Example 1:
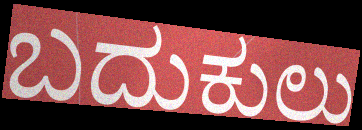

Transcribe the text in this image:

ಬದುಕುಲು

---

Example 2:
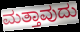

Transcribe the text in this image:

ಮತ್ತಾವುದು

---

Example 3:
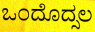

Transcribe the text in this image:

ಒಂದೊದ್ಸಲ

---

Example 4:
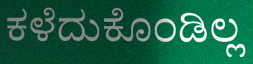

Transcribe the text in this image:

ಕಳೆದುಕೊಂಡಿಲ್ಲ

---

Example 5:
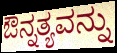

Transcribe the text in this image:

ಔನ್ನತ್ಯವನ್ನು